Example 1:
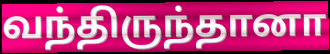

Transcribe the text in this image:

வந்திருந்தானா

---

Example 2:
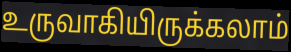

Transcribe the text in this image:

உருவாகியிருக்கலாம்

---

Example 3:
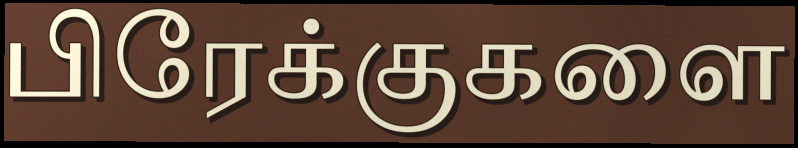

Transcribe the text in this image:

பிரேக்குகளை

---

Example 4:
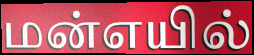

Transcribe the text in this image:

மன்எயில்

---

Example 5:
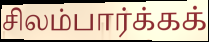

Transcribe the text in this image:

சிலம்பார்க்கக்